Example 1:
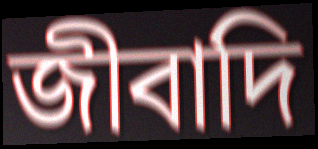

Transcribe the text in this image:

জীবাদি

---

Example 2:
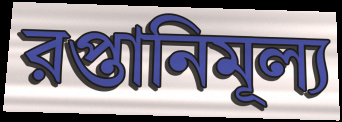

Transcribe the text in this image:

রপ্তানিমূল্য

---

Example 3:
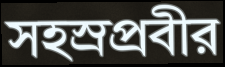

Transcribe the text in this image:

সহস্রপ্রবীর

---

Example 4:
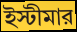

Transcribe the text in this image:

ইস্টীমার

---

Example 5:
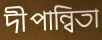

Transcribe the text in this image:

দীপান্বিতা